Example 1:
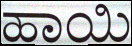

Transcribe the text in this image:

ಹಾಯಿ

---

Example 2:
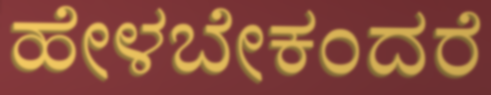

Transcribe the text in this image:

ಹೇಳಬೇಕಂದರೆ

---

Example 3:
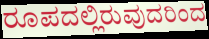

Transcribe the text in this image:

ರೂಪದಲ್ಲಿರುವುದರಿಂದ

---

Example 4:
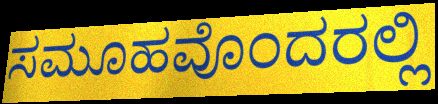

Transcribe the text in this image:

ಸಮೂಹವೊಂದರಲ್ಲಿ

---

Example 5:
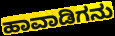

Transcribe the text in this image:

ಹಾವಾಡಿಗನು